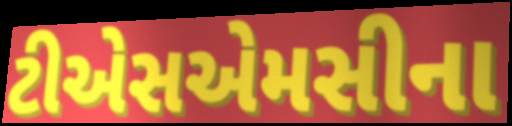
ટીએસએમસીના